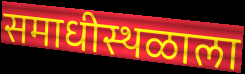
समाधीस्थळाला